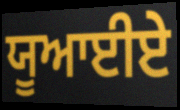
ਯੂਆਈਏ